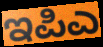
ಇಪಿಎ